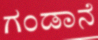
ಗಂಡಾನೆ